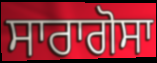
ਸਾਰਾਗੋਸਾ